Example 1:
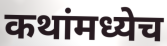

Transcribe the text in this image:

कथांमध्येच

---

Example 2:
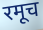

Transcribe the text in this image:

रमूच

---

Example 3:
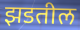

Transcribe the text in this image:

झडतील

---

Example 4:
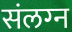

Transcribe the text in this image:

संलग्‍न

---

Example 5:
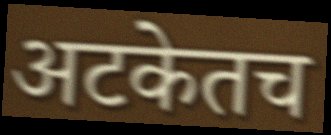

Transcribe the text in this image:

अटकेतच